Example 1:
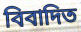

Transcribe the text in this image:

বিবাদিত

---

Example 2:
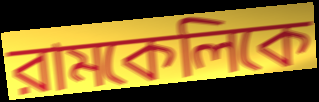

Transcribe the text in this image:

রামকেলিকে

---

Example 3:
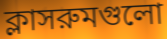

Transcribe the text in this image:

ক্লাসরুমগুলো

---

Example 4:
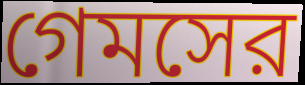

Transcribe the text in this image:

গেমসের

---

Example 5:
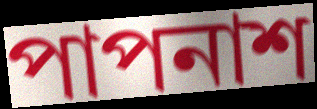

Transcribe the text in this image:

পাপনাশ